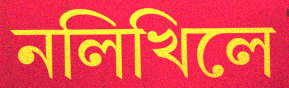
নলিখিলে